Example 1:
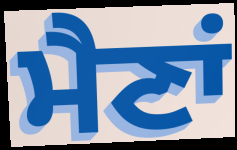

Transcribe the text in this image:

ਮੈਣਾਂ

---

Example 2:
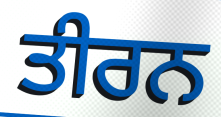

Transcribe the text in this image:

ਤੀਰਨ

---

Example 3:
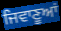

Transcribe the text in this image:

ਜਿਵਾਣੂਆਂ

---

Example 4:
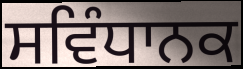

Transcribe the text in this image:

ਸਵਿੰਧਾਨਕ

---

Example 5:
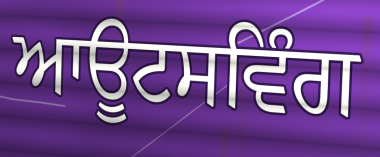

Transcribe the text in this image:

ਆਊਟਸਵਿੰਗ